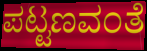
ಪಟ್ಟಣವಂತೆ